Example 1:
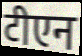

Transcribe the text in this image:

टीएन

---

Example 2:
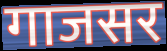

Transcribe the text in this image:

गाजसर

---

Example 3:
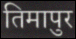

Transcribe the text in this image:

तिमापुर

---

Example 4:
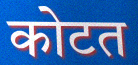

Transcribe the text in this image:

कोटत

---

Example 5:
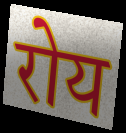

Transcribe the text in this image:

रोय